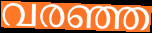
വരഞ്ഞ